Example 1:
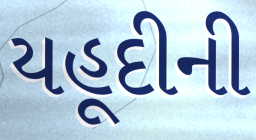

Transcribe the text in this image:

યહૂદીની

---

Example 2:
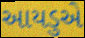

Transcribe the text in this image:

આયડુએ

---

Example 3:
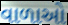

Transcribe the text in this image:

વાળાઓ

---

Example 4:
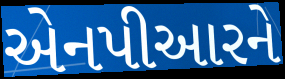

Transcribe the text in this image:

એનપીઆરને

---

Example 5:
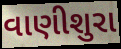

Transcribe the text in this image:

વાણીશુરા